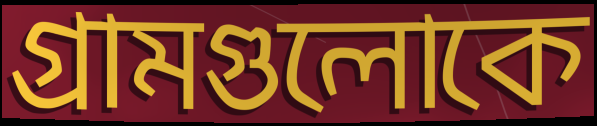
গ্রামগুলোকে